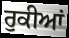
ਰੁਕੀਆਂ